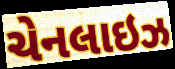
ચેનલાઇઝ